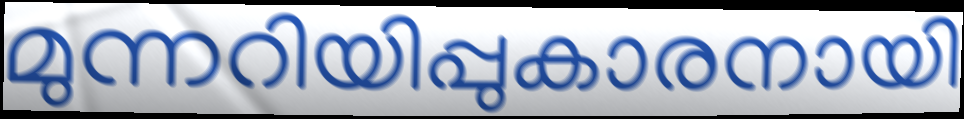
മുന്നറിയിപ്പുകാരനായി